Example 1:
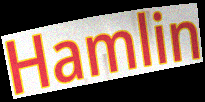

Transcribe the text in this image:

Hamlin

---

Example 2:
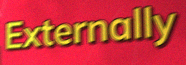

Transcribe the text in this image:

Externally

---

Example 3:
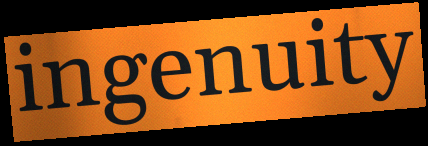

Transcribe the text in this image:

ingenuity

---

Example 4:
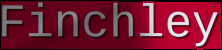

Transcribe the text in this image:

Finchley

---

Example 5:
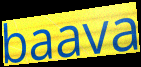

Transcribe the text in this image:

baava